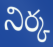
నిర్క